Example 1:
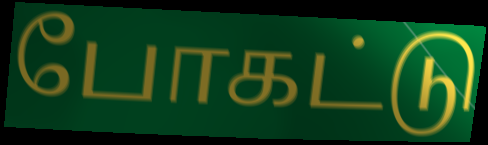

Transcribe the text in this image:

போகட்டு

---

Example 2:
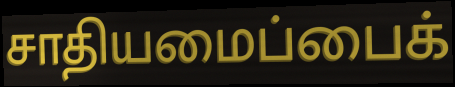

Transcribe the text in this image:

சாதியமைப்பைக்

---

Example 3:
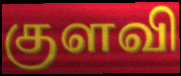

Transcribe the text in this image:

குளவி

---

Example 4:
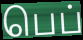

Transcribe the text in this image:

பெப்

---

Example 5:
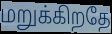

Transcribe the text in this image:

மறுக்கிறதே